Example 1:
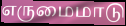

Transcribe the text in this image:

எருமைமாடு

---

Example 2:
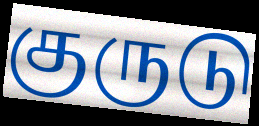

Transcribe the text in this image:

குருடு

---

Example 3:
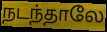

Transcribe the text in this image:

நடந்தாலே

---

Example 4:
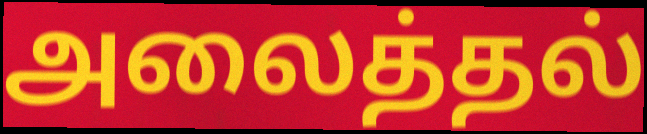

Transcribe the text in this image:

அலைத்தல்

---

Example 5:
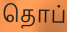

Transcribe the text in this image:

தொப்